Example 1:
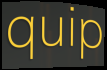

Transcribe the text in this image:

quip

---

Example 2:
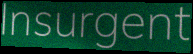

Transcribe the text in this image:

Insurgent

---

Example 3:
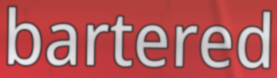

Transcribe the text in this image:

bartered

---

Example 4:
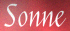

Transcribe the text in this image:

Sonne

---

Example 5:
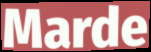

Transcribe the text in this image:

Marde